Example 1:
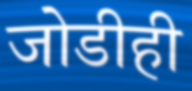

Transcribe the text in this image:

जोडीही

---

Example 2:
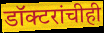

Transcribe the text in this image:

डॉक्टरांचीही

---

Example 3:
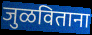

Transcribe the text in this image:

जुळविताना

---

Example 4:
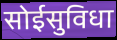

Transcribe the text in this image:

सोईसुविधा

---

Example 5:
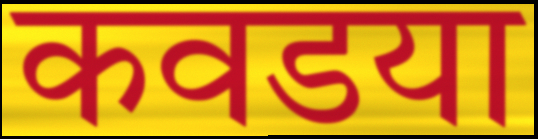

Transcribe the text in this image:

कवडया